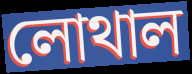
লোথাল